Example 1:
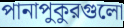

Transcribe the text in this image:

পানাপুকুরগুলো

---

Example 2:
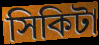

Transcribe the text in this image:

সিকিটা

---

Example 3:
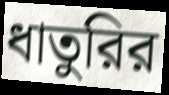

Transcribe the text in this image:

ধাতুরির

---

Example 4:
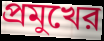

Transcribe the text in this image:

প্রমুখের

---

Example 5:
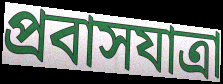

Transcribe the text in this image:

প্রবাসযাত্রা